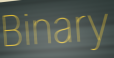
Binary